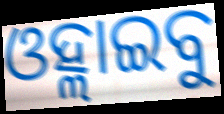
ଓହ୍ଲାଇବୁ